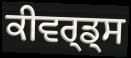
ਕੀਵਰ੍ਡ੍ਸ